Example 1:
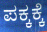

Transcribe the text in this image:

ಪಕ್ಕಕ್ಕೆ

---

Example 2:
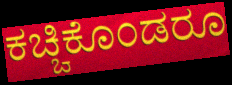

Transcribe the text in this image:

ಕಚ್ಚಿಕೊಂಡರೂ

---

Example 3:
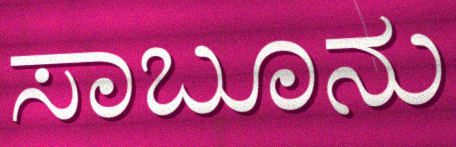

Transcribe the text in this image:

ಸಾಬೂನು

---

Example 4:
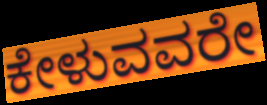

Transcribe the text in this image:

ಕೇಳುವವರೇ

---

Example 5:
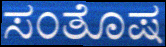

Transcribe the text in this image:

ಸಂತೊಷ